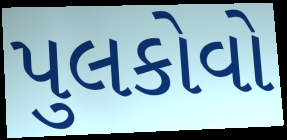
પુલકોવો